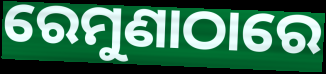
ରେମୁଣାଠାରେ